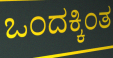
ಒಂದಕ್ಕಿಂತ